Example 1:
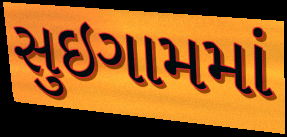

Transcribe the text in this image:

સુઇગામમાં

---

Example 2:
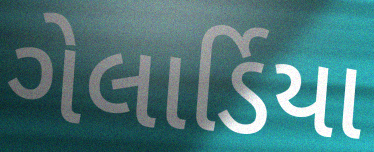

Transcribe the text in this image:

ગેલાર્ડિયા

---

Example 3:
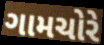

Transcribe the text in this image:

ગામચોરે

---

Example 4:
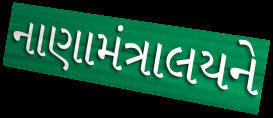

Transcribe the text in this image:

નાણામંત્રાલયને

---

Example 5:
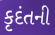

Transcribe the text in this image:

કૃદંતની